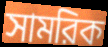
সামরিক